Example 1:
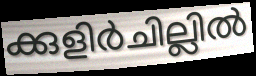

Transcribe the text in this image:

ക്കുളിർചില്ലിൽ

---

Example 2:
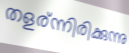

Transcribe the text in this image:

തളര്ന്നിരിക്കുന്നു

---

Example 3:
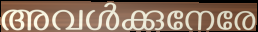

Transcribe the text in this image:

അവൾക്കുനേരേ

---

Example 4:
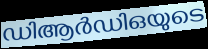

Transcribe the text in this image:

ഡിആർഡിഒയുടെ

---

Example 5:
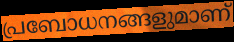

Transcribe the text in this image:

പ്രബോധനങ്ങളുമാണ്